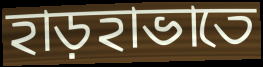
হাড়হাভাতে